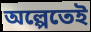
অল্পেতেই